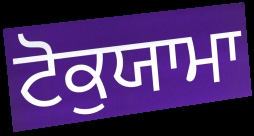
ਟੋਕੁਯਾਮਾ